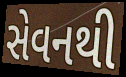
સેવનથી